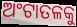
ଅଂଟାତଳକୁ